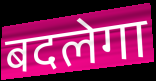
बदलेगा